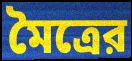
মৈত্রের